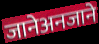
जानेअनजाने